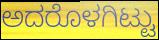
ಅದರೊಳಗಿಟ್ಟು